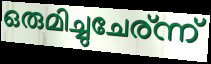
ഒരുമിച്ചുചേര്ന്ന്